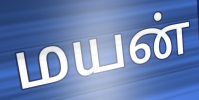
மயன்